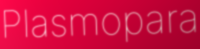
Plasmopara